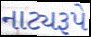
નાટ્યરૂપે